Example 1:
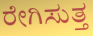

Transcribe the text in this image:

ರೇಗಿಸುತ್ತ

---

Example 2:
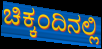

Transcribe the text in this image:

ಚಿಕ್ಕಂದಿನಲ್ಲಿ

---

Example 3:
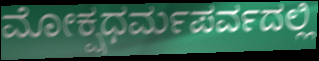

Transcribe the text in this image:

ಮೋಕ್ಷಧರ್ಮಪರ್ವದಲ್ಲಿ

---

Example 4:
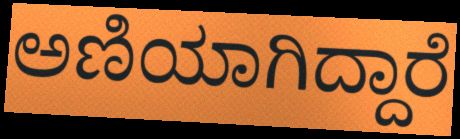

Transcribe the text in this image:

ಅಣಿಯಾಗಿದ್ದಾರೆ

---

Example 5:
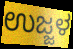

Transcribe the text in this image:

ಉಜ್ಜಳ